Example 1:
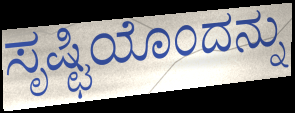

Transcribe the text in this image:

ಸೃಷ್ಟಿಯೊಂದನ್ನು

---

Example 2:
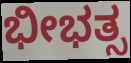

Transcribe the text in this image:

ಭೀಭತ್ಸ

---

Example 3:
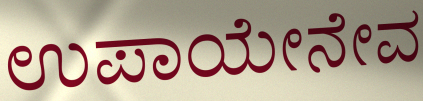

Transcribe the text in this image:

ಉಪಾಯೇನೇವ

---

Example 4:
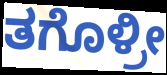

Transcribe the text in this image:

ತಗೊಳ್ರೀ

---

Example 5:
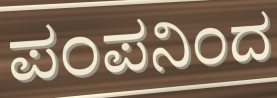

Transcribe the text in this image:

ಪಂಪನಿಂದ